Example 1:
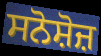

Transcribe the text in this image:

ਸਨੋਸ਼ੋਜ਼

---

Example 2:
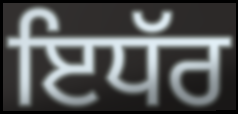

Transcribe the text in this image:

ਇਧੱਰ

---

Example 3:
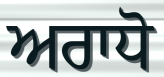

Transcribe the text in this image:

ਅਰਾਧੋ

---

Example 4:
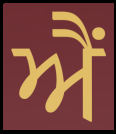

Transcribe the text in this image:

ਐਂ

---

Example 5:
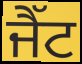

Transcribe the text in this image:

ਜੈੱਟ